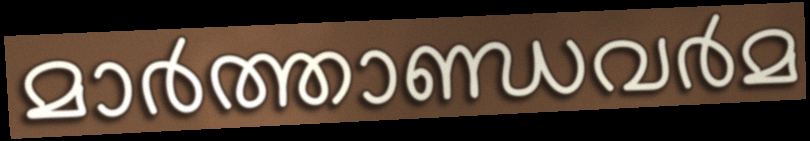
മാർത്താണ്ഡവർമ